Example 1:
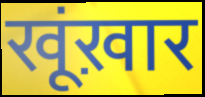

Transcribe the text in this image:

खूंख़ार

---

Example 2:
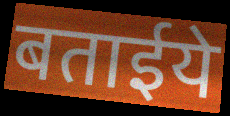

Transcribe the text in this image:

बताईये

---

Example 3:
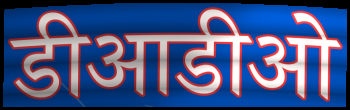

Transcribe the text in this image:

डीआडीओ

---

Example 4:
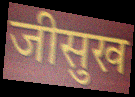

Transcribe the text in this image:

जीसुख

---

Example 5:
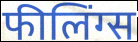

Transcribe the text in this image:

फीलिंग्स